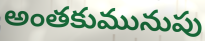
అంతకుమునుపు